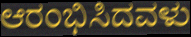
ಆರಂಭಿಸಿದವಳು